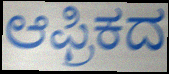
ಆಫ್ರಿಕದ